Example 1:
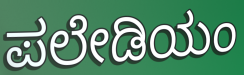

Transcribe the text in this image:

ಪಲೇಡಿಯಂ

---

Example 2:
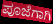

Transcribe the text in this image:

ಪೂಜೆಗಾಗಿ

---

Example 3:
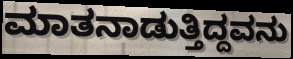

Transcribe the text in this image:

ಮಾತನಾಡುತ್ತಿದ್ದವನು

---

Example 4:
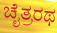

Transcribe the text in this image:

ಚೈತ್ರರಥ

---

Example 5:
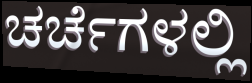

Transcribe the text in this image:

ಚರ್ಚೆಗಳಲ್ಲಿ